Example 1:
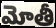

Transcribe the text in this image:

మోతీ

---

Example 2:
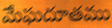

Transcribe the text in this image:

మేఘదూతము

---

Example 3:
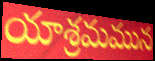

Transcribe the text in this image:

యాశ్రమమున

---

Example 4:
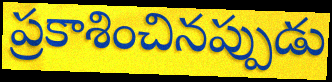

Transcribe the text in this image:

ప్రకాశించినప్పుడు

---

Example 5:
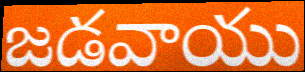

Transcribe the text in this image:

జడవాయు